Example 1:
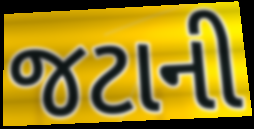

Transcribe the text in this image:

જટાની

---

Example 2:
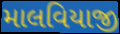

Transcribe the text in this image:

માલવિયાજી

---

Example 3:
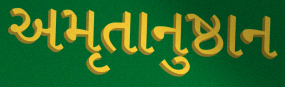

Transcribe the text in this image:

અમૃતાનુષ્ઠાન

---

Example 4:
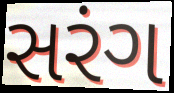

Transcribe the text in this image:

સરંગ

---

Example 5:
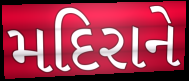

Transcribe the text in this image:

મદિરાને